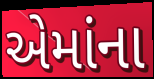
એમાંના